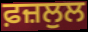
ਫ਼ਜ਼ਲੁਲ